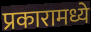
प्रकारामध्ये